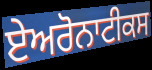
ਏਅਰੋਨਾਟੀਕਸ